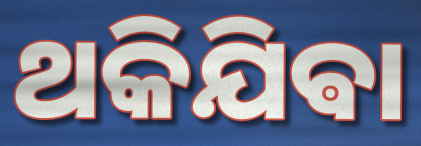
ଥକିଯିଵା